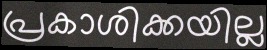
പ്രകാശിക്കയില്ല